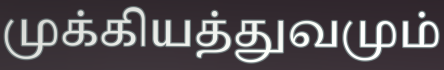
முக்கியத்துவமும்